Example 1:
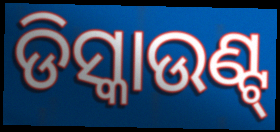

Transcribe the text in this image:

ଡିସ୍କାଉଣ୍ଟ୍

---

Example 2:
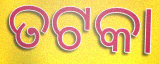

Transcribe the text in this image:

ତଟକା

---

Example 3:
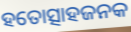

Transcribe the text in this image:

ହତୋତ୍ସାହଜନକ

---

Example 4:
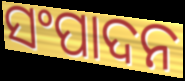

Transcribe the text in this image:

ସଂପାଦନ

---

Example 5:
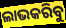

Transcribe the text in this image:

ଲାଭକରିବୁ